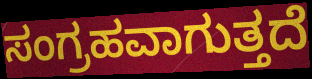
ಸಂಗ್ರಹವಾಗುತ್ತದೆ